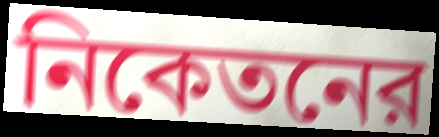
নিকেতনের